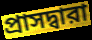
প্রাসদ্বারা